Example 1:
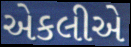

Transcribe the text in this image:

એકલીએ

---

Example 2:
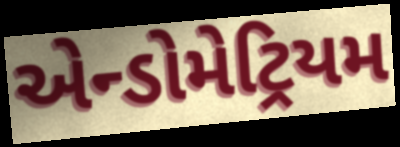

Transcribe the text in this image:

એન્ડોમેટ્રિયમ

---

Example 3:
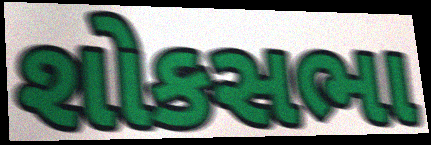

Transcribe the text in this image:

શોકસભા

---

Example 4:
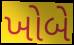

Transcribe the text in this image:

ખોબે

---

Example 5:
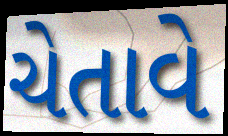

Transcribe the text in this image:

ચેતાવે